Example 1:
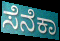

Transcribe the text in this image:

ಸೆನೆಕಾ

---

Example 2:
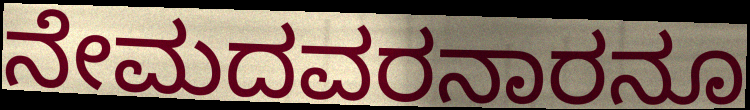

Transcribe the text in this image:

ನೇಮದವರನಾರನೂ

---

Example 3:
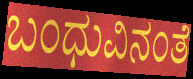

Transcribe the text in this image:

ಬಂಧುವಿನಂತೆ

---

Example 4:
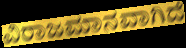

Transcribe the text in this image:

ವಿರಾಜಮಾನವಾಗಿದೆ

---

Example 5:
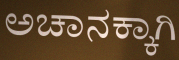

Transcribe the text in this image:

ಅಚಾನಕ್ಕಾಗಿ